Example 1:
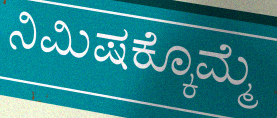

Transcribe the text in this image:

ನಿಮಿಷಕ್ಕೊಮ್ಮೆ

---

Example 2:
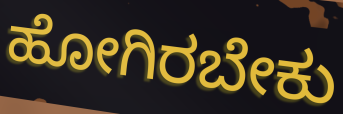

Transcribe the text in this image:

ಹೋಗಿರಬೇಕು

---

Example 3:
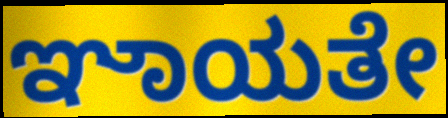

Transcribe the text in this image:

ಞಾಯತೇ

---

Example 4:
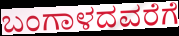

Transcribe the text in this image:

ಬಂಗಾಳದವರೆಗೆ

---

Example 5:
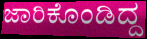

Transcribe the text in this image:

ಜಾರಿಕೊಂಡಿದ್ದ